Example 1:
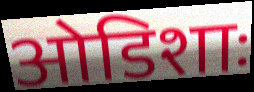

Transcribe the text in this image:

ओडिशाः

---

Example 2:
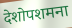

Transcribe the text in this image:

देशोपशमना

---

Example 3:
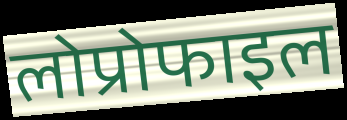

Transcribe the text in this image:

लोप्रोफाइल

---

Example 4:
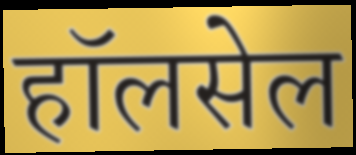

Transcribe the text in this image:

हॉलसेल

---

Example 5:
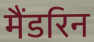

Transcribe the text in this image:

मैंडरिन